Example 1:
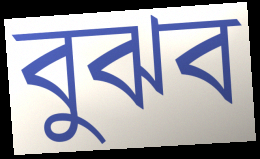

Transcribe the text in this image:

বুঝব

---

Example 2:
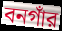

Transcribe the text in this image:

বনগাঁর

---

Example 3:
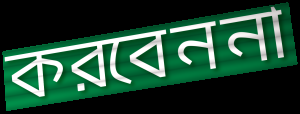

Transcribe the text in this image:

করবেননা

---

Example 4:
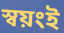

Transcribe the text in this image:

স্বয়ংই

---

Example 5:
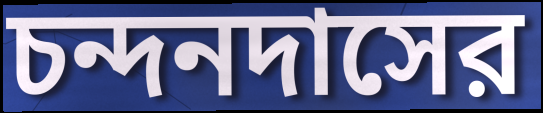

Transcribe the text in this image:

চন্দনদাসের